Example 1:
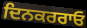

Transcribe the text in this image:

ਦਿਨਕਰਰਾਓ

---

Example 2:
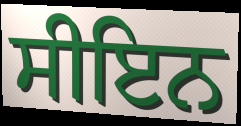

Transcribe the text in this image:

ਸੀਇਨ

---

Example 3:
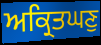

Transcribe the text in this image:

ਅਕ੍ਰਿਤਘਣੁ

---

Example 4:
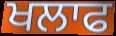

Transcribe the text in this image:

ਖਲਾਫ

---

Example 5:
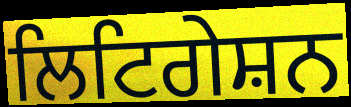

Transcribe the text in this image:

ਲਿਟਿਗੇਸ਼ਨ